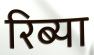
रिब्या